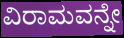
ವಿರಾಮವನ್ನೇ